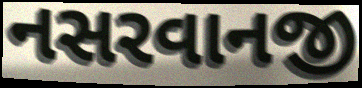
નસરવાનજી